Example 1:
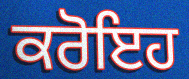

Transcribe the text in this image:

ਕਰੋਇਹ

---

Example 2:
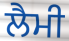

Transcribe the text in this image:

ਲੈਮੀ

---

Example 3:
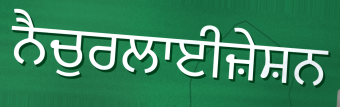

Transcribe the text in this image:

ਨੈਚੁਰਲਾਈਜ਼ੇਸ਼ਨ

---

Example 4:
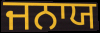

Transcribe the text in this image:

ਜਨਾਯ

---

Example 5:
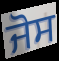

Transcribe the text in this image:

ਜੋਸ